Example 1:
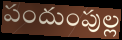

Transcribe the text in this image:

పందుంపుల్ల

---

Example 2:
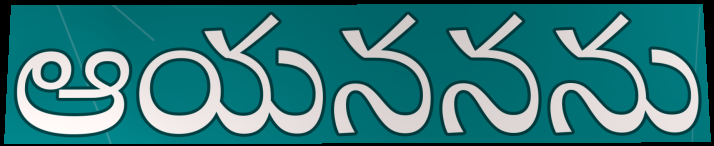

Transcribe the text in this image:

ఆయననను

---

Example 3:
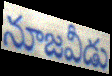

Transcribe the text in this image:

నూజవీడు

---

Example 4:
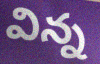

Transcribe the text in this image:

విన్న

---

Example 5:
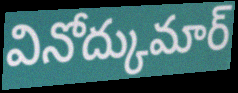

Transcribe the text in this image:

వినోద్కుమార్